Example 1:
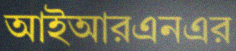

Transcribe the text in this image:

আইআরএনএর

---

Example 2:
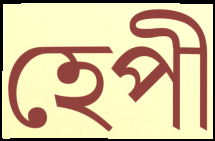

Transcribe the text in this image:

হেপী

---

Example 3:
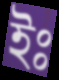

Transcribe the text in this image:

ইঃ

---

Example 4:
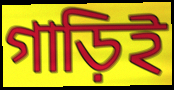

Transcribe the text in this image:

গাড়িই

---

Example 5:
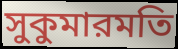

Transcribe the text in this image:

সুকুমারমতি